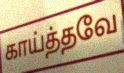
காய்த்தவே